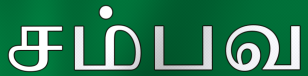
சம்பவ